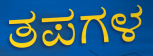
ತಪಗಳ